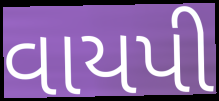
વાયપી